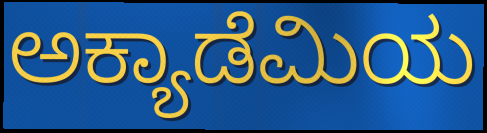
ಅಕ್ಯಾಡೆಮಿಯ